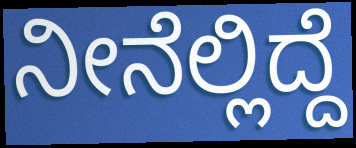
ನೀನೆಲ್ಲಿದ್ದೆ